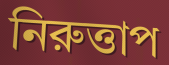
নিরুত্তাপ